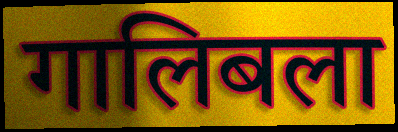
गालिबला